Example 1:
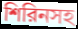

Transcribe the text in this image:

শিরিনসহ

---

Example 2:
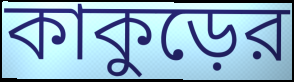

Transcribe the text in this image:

কাকুড়ের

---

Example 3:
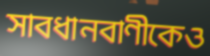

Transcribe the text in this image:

সাবধানবাণীকেও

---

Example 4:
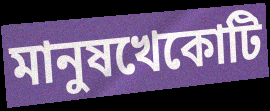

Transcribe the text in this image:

মানুষখেকোটি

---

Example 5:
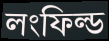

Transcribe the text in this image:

লংফিল্ড